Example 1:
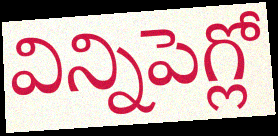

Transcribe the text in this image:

విన్నిపెగ్లో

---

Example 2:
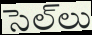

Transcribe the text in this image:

సెల్‌లు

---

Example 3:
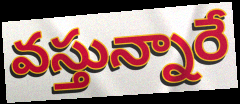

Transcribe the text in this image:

వస్తున్నారే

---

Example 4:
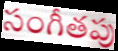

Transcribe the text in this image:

సంగీతపు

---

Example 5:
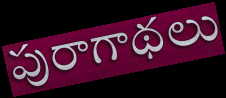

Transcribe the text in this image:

పురాగాథలు